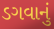
ડગવાનું